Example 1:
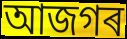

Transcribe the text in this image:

আজগৰ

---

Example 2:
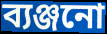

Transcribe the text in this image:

ব্যঞ্জনো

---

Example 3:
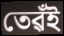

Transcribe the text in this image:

তেৱঁই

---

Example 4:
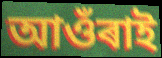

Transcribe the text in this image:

আওঁৰাই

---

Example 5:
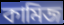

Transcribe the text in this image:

কামিজ